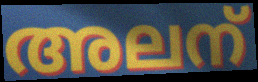
അലന്